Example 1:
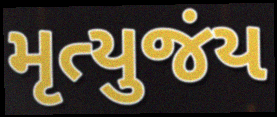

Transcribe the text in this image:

મૃત્યુજંય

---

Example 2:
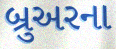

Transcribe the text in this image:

બ્રુઅરના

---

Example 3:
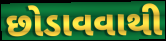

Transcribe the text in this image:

છોડાવવાથી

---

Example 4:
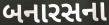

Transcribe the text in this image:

બનારસના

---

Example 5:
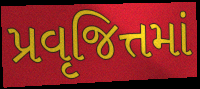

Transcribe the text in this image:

પ્રવૃજિત્તમાં